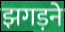
झगड़ने